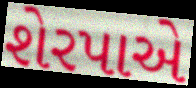
શેરપાએ